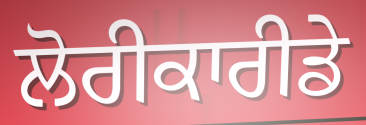
ਲੋਰੀਕਾਰੀਡੇ